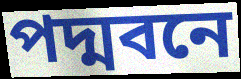
পদ্মবনে